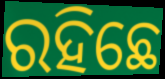
ରହିଛେ